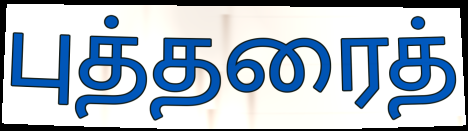
புத்தரைத்